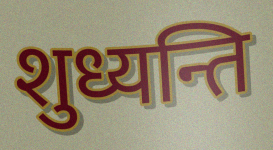
शुध्यन्ति